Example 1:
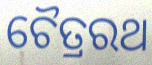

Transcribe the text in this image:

ଚୈତ୍ରରଥ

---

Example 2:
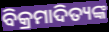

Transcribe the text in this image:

ବିକ୍ରମାଦିତ୍ୟଙ୍କ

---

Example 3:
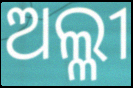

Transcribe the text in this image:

ଅଲ୍ଳୀ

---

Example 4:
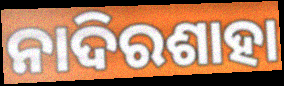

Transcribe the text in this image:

ନାଦିରଶାହା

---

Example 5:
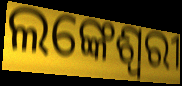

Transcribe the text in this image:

ଲଙ୍କେଶ୍ୱରୀ